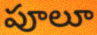
పూలూ